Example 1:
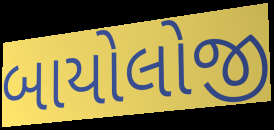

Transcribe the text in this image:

બાયોલોજી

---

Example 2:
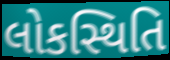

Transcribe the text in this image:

લોકસ્થિતિ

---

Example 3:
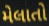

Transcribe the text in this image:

મેલાતો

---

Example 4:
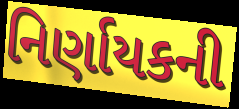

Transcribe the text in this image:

નિર્ણાયકની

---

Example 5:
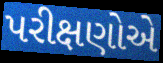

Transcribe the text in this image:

પરીક્ષણોએ